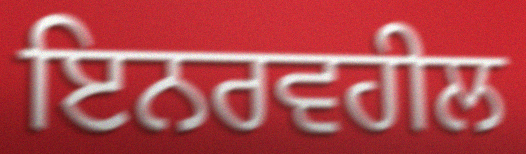
ਇਨਰਵਹੀਲ